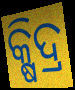
କ୍ଷିଦ୍ର